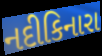
નદીકિનારા